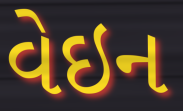
વેઇન